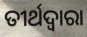
ତୀର୍ଥଦ୍ବାରା